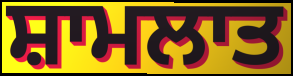
ਸ਼ਾਮਲਾਤ